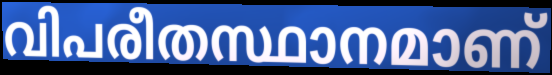
വിപരീതസ്ഥാനമാണ്